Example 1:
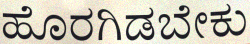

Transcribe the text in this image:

ಹೊರಗಿಡಬೇಕು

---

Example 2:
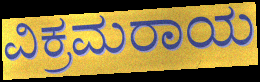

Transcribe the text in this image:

ವಿಕ್ರಮರಾಯ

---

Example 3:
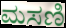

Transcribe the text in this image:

ಮಸಣಿ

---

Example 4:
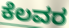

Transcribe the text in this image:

ಕೆಲವರ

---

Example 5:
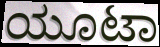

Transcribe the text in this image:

ಯೂಟಾ